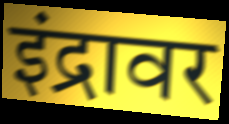
इंद्रावर